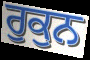
ਰੁਕੁਨ